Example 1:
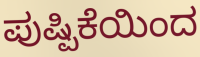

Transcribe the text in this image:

ಪುಷ್ಪಿಕೆಯಿಂದ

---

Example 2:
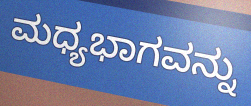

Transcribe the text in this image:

ಮಧ್ಯಭಾಗವನ್ನು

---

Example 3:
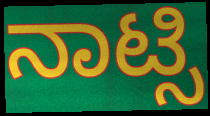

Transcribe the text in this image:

ನಾಟ್ಸಿ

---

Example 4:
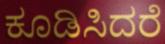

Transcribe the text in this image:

ಕೂಡಿಸಿದರೆ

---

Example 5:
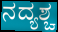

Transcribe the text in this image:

ನದ್ಯಶ್ಚ